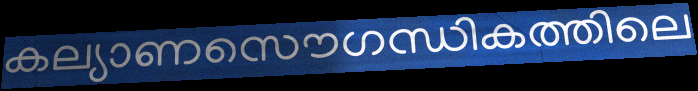
കല്യാണസൌഗന്ധികത്തിലെ